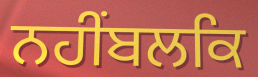
ਨਹੀਂਬਲਕਿ